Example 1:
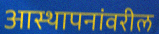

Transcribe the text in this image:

आस्थापनांवरील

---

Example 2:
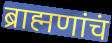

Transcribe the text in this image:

ब्राह्मणांचं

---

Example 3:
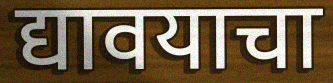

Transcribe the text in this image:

द्यावयाचा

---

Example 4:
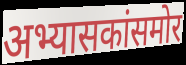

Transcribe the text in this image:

अभ्यासकांसमोर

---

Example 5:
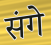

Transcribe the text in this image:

संगे